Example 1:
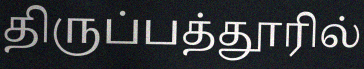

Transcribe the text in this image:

திருப்பத்தூரில்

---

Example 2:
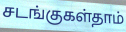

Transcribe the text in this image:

சடங்குகள்தாம்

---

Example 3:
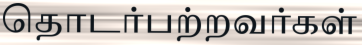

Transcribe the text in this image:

தொடர்பற்றவர்கள்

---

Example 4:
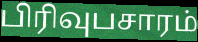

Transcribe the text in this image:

பிரிவுபசாரம்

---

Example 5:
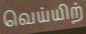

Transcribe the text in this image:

வெய்யிற்